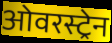
ओवरस्ट्रेन